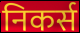
निकर्स